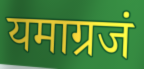
यमाग्रजं